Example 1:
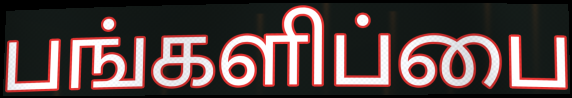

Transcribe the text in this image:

பங்களிப்பை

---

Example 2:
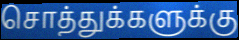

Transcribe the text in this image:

சொத்துக்களுக்கு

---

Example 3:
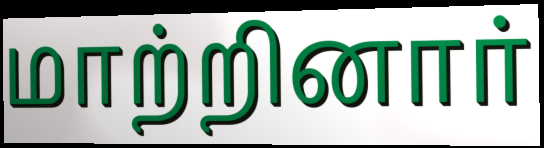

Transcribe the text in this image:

மாற்றினார்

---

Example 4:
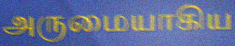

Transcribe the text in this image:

அருமையாகிய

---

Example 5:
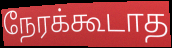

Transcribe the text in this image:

நேரக்கூடாத